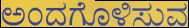
ಅಂದಗೊಳಿಸುವ